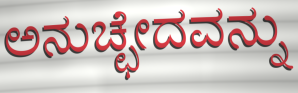
ಅನುಚ್ಛೇದವನ್ನು